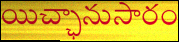
యిచ్ఛానుసారం